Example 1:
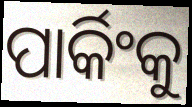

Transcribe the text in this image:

ପାର୍କିଂକୁ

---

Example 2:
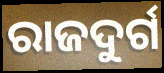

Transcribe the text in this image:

ରାଜଦୁର୍ଗ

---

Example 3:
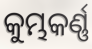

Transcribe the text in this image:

କୁମ୍ଭକର୍ଣ୍ଣ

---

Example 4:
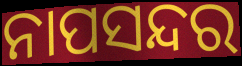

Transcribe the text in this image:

ନାପସନ୍ଦର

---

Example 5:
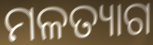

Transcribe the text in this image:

ମଳତ୍ୟାଗ